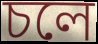
চলে